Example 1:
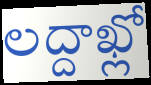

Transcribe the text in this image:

లద్దాఖ్లో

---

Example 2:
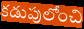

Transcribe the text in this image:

కడుపులోంచి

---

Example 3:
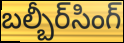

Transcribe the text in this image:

బల్బీర్‌సింగ్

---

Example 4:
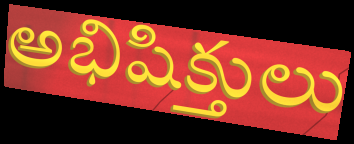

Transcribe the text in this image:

అభిషిక్తులు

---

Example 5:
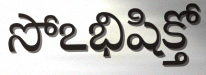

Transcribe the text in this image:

సోఽభిషిక్తో